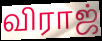
விராஜ்